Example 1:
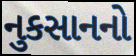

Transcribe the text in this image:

નુકસાનનો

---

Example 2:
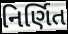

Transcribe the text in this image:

નિર્ણિત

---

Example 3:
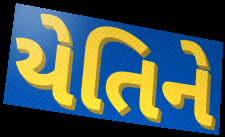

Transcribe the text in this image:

યેતિને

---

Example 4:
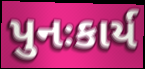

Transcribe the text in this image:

પુનઃકાર્ય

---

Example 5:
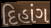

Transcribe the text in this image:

દિહાંગ